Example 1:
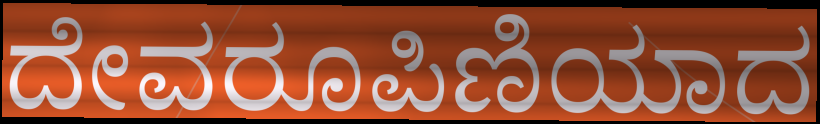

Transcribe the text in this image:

ದೇವರೂಪಿಣಿಯಾದ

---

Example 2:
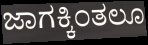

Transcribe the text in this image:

ಜಾಗಕ್ಕಿಂತಲೂ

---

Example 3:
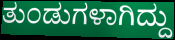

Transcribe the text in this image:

ತುಂಡುಗಳಾಗಿದ್ದು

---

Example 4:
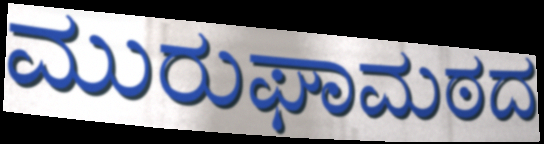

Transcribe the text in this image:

ಮುರುಘಾಮಠದ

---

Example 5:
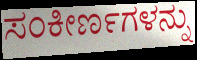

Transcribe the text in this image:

ಸಂಕೀರ್ಣಗಳನ್ನು